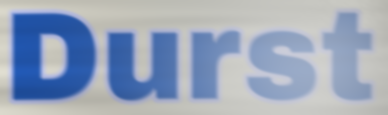
Durst